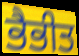
ਭੈਭੀਤ